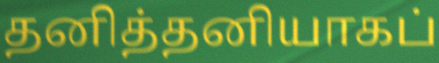
தனித்தனியாகப்